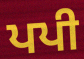
ਪਪੀ